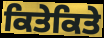
ਕਿਤੇਕਿਤੇ